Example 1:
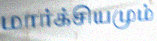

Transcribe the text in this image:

மார்க்சியமும்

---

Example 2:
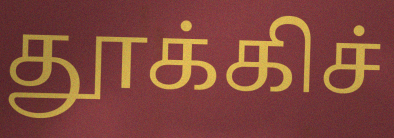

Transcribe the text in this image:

தூக்கிச்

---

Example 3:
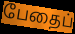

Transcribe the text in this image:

பேதைப்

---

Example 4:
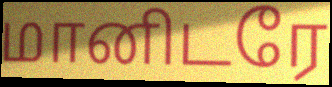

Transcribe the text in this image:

மானிடரே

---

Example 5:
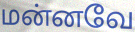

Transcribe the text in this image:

மன்னவே